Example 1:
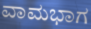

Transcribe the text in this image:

ವಾಮಭಾಗ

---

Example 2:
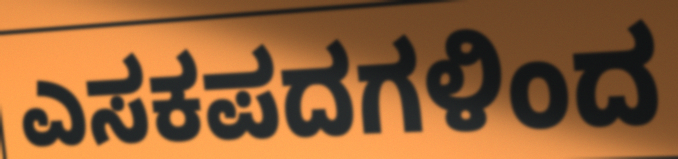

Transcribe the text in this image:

ಎಸಕಪದಗಳಿಂದ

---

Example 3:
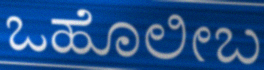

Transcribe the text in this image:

ಒಹೊಲೀಬ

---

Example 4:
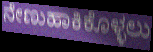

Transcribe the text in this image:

ನೇಣುಹಾಕಿಕೊಳ್ಳಲು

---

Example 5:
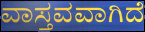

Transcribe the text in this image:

ವಾಸ್ತವವಾಗಿದೆ